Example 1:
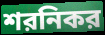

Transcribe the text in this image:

শরনিকর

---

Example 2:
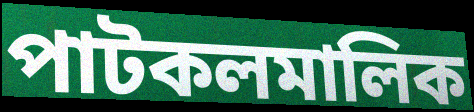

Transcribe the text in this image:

পাটকলমালিক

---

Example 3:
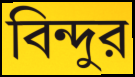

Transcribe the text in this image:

বিন্দুর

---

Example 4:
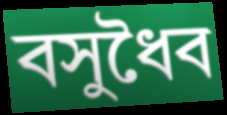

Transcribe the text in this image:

বসুধৈব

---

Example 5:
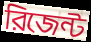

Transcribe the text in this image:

রিজেন্ট